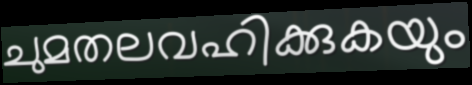
ചുമതലവഹിക്കുകയും